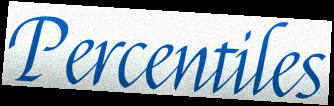
Percentiles